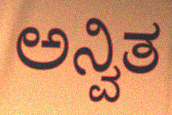
ಅನ್ವಿತ